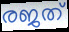
രജത്